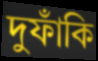
দুফাঁকি